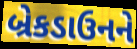
બ્રેકડાઉનને